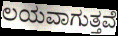
ಲಯವಾಗುತ್ತವೆ